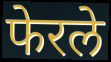
फेरले